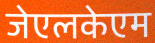
जेएलकेएम